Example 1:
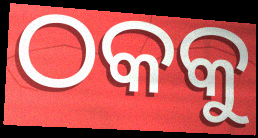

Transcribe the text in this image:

ଠକକୁ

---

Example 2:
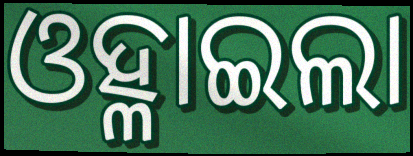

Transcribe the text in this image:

ଓହ୍ଳାଇଲା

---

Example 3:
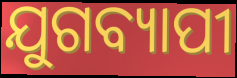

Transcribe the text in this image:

ଯୁଗବ୍ୟାପୀ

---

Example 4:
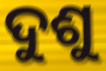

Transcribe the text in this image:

ଦୁଶୁ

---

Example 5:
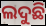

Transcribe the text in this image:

ଲଦୁଛି